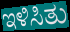
ಇಳಿಸಿತು